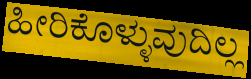
ಹೀರಿಕೊಳ್ಳುವುದಿಲ್ಲ